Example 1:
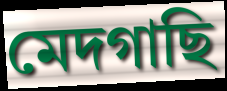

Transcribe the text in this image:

মেদগাছি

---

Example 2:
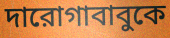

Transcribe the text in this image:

দারোগাবাবুকে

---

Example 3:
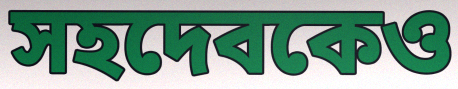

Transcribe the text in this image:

সহদেবকেও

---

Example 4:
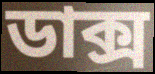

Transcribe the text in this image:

ডাক্স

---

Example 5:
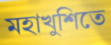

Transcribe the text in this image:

মহাখুশিতে